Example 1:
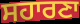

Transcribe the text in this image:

ਸਹਾਰਣਾ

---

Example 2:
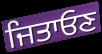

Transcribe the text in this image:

ਜਿਤਾਓਣ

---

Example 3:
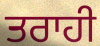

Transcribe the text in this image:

ਤਰਾਹੀ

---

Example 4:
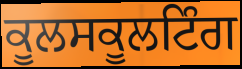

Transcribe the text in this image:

ਕੂਲਸਕੂਲਟਿੰਗ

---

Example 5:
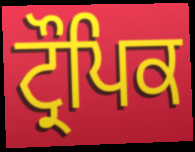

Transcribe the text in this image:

ਟ੍ਰੌਪਿਕ